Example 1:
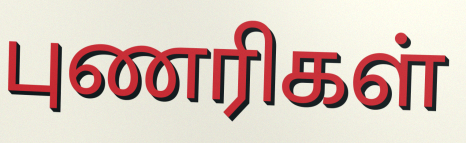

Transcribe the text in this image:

புணரிகள்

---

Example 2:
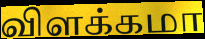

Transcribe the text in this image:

விளக்கமா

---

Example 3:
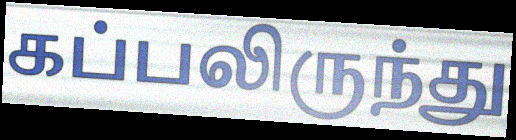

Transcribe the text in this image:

கப்பலிருந்து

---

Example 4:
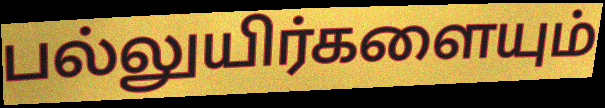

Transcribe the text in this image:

பல்லுயிர்களையும்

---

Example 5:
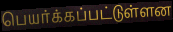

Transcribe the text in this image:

பெயர்க்கப்பட்டுள்ளன